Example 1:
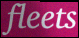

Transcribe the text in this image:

fleets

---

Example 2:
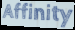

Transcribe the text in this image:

Affinity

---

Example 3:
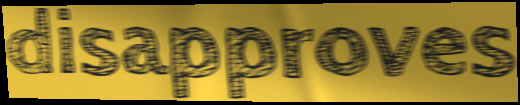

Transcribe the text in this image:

disapproves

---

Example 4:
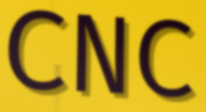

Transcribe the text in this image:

CNC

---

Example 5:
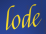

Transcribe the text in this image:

lode